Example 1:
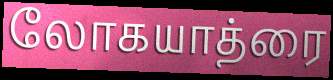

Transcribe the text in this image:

லோகயாத்ரை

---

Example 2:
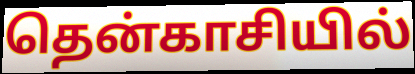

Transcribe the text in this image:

தென்காசியில்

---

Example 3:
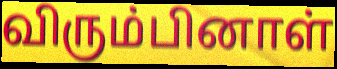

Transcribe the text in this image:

விரும்பினாள்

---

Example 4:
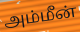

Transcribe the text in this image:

அம்மீன்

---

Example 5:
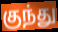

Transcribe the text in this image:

குந்து